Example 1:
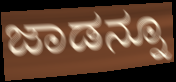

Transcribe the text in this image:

ಜಾಡನ್ನೂ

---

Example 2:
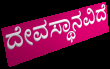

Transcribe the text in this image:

ದೇವಸ್ಥಾನವಿದೆ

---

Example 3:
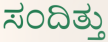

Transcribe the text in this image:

ಸಂದಿತ್ತು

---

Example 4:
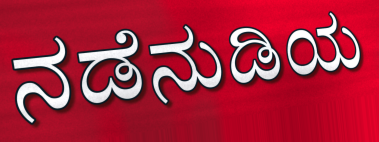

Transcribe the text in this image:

ನಡೆನುಡಿಯ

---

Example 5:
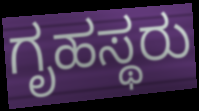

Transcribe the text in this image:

ಗೃಹಸ್ಥರು